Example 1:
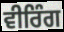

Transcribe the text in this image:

ਵੀਰਿੰਗ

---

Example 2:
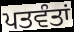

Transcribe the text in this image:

ਪਤਵੰਤਾਂ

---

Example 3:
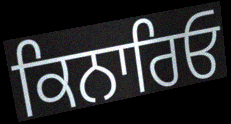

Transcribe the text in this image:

ਕਿਨਾਰਿਓ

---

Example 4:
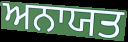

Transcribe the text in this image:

ਅਨਾਯਤ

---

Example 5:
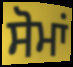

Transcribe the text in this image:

ਸੋਮਾਂ